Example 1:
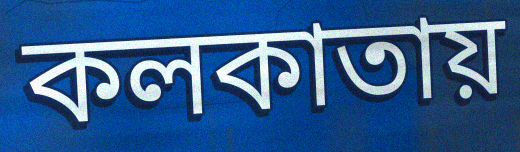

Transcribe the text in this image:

কলকাতায়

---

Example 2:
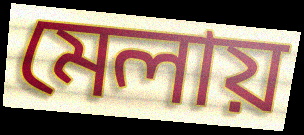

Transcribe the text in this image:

মেলায়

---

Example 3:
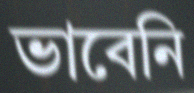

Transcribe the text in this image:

ভাবেনি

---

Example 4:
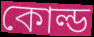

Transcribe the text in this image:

কোল্ড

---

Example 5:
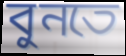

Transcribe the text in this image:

বুনতে